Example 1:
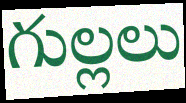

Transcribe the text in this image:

గుల్లలు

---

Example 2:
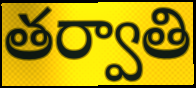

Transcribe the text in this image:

తర్వాతి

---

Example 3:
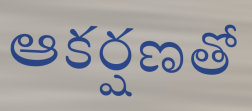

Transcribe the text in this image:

ఆకర్షణతో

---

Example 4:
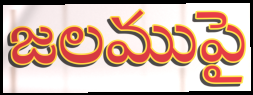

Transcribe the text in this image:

జలముపై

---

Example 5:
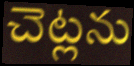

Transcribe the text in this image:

చెట్లను